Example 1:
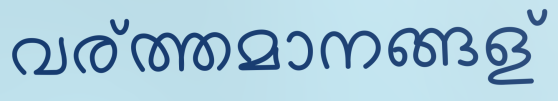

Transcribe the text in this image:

വര്ത്തമാനങ്ങള്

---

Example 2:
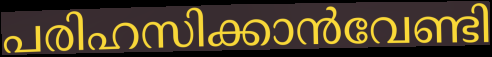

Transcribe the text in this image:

പരിഹസിക്കാൻവേണ്ടി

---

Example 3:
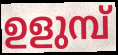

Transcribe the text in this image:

ഉളുമ്പ്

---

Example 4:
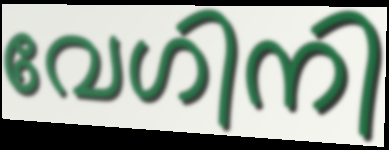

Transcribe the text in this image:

വേഗിനി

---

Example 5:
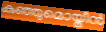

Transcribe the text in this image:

കുഞ്ഞുമൊയ്തീൻ